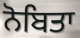
ਨੋਬਿਤਾ